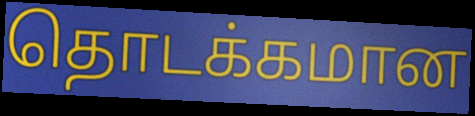
தொடக்கமான